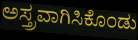
ಅಸ್ತ್ರವಾಗಿಸಿಕೊಂಡು